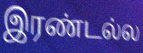
இரண்டல்ல